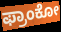
ಫ್ರಾಂಕೋ